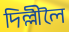
দিল্লীলৈ